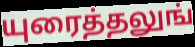
யுரைத்தலுங்